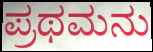
ಪ್ರಥಮನು